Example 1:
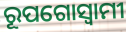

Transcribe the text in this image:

ରୂପଗୋସ୍ୱାମୀ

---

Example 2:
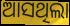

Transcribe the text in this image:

ଆସଥିଲା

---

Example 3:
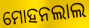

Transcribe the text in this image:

ମୋହନଲାଲ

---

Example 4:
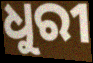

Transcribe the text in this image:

ଧୁରୀ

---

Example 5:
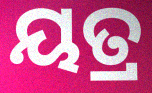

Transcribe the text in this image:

ୟତ୍ର